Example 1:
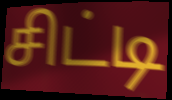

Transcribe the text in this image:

சிட்டி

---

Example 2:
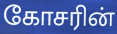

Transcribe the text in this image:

கோசரின்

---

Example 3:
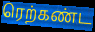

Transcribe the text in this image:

ரெற்கண்ட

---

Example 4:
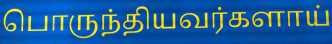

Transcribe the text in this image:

பொருந்தியவர்களாய்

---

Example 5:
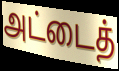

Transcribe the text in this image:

அட்டைத்